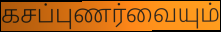
கசப்புணர்வையும்